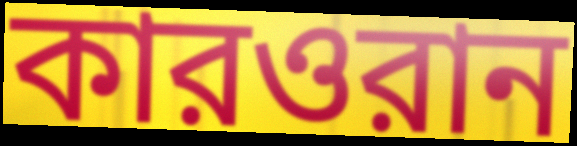
কারওরান